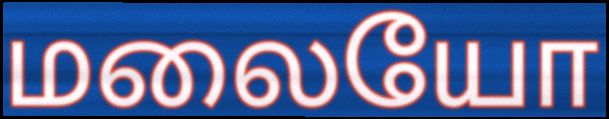
மலையோ